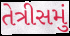
તેત્રીસમું